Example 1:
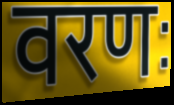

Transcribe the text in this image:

वरणः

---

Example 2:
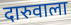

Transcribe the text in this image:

दारुवाला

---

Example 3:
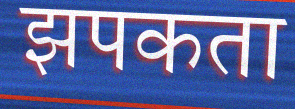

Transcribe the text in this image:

झपकता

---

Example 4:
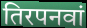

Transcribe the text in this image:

तिरपनवां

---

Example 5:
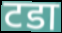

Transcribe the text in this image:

टडा